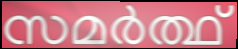
സമർത്ഥ്